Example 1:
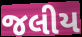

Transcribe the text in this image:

જલીય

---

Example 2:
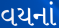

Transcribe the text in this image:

વયનાં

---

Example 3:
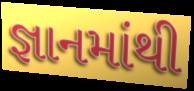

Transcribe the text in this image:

જ્ઞાનમાંથી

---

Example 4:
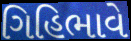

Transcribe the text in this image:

ગિહિભાવે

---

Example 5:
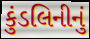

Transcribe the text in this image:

કુંડલિનીનું